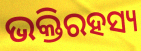
ଭକ୍ତିରହସ୍ୟ